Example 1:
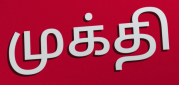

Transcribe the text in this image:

முக்தி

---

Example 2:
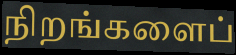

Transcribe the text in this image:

நிறங்களைப்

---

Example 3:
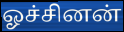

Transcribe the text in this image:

ஓச்சினன்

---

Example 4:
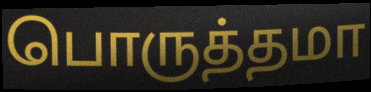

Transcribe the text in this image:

பொருத்தமா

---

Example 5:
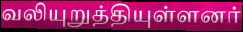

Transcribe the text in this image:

வலியுறுத்தியுள்ளனர்